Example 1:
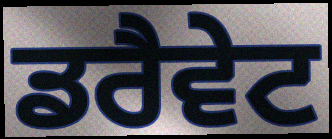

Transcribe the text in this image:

ਡਰੈਵੇਟ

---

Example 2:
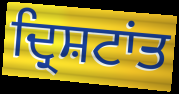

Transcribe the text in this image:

ਦ੍ਰਿਸ਼ਟਾਂਤ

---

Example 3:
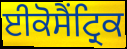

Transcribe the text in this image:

ਈਕੋਸੈਂਟ੍ਰਿਕ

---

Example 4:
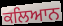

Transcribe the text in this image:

ਕਲਿਆਨ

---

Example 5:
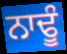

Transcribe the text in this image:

ਨਾਢੂੰ